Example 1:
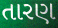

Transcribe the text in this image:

તારણ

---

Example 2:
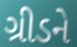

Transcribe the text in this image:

ગ્રીડને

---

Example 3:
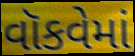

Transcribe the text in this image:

વૉકવેમાં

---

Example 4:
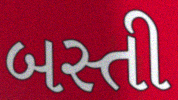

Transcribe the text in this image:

બસ્તી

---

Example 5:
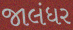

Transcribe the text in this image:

જાલંધર